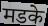
मडके